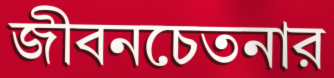
জীবনচেতনার